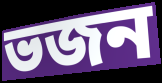
ভজন